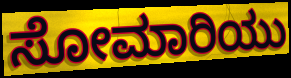
ಸೋಮಾರಿಯು